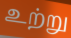
உற்று